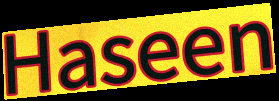
Haseen